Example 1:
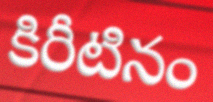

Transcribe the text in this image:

కిరీటినం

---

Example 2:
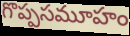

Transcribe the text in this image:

గొప్పసమూహం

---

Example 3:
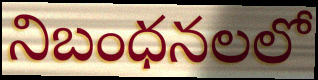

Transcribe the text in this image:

నిబంధనలలో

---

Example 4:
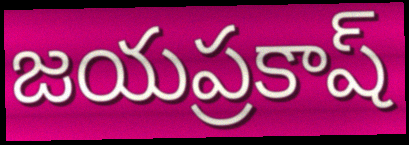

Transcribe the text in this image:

జయప్రకాష్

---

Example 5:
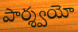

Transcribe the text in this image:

పార్శ్వయో